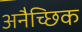
अनैच्छिक